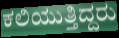
ಕಲಿಯುತ್ತಿದ್ದರು